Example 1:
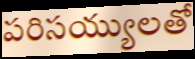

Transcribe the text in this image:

పరిసయ్యులతో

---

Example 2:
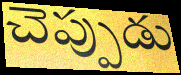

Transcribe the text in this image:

చెప్పుడు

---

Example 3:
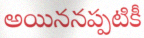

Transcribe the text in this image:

అయిననప్పటికీ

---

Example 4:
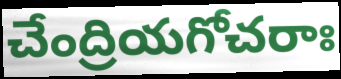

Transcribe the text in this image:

చేంద్రియగోచరాః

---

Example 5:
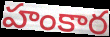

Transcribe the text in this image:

హంకార